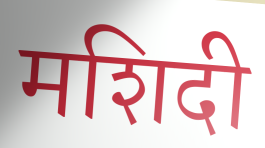
मशिदी